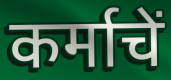
कर्माचें